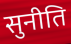
सुनीति